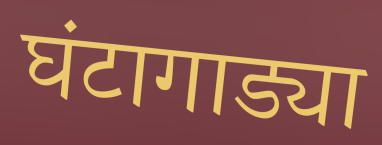
घंटागाड्या